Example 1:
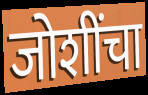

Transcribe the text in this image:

जोशींचा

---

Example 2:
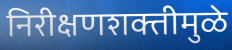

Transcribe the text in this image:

निरीक्षणशक्तीमुळे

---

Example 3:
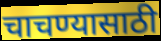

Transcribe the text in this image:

चाचण्यासाठी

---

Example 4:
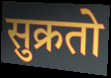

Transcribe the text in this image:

सुक्रतो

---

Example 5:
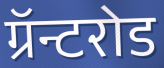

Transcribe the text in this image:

ग्रॅन्टरोड